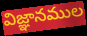
విజ్ఞానముల